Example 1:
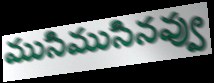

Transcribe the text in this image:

ముసిముసినవ్వు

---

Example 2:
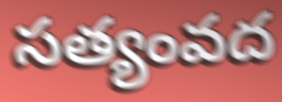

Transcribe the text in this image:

సత్యంవద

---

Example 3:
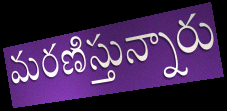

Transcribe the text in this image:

మరణిస్తున్నారు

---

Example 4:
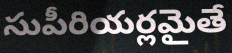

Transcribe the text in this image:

సుపీరియర్లమైతే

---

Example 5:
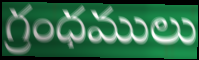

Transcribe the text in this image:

గ్రంధములు